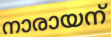
നാരായന്